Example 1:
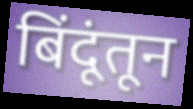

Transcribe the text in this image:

बिंदूंतून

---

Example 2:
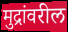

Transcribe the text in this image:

मुद्रांवरील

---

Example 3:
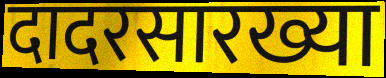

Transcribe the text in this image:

दादरसारख्या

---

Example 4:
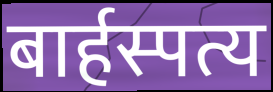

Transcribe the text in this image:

बार्हस्पत्य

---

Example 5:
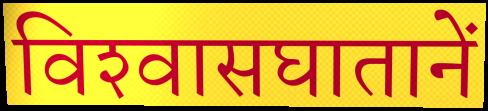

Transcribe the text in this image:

विश्वासघातानें